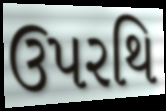
ઉપરથિ